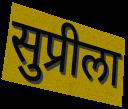
सुप्रीला